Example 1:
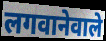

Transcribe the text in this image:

लगवानेवाले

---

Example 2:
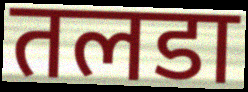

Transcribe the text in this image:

तलडा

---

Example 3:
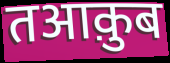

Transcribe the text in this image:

तआक़ुब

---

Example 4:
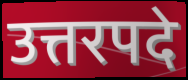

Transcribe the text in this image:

उत्तरपदे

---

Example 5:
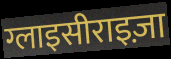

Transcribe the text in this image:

ग्लाइसीराइज़ा